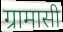
ग्रामासी